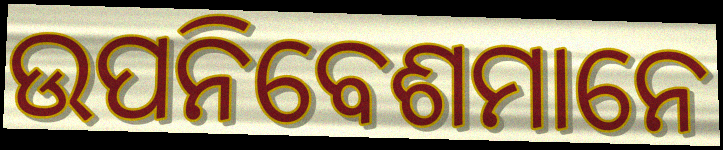
ଉପନିବେଶମାନେ